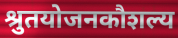
श्रुतयोजनकौशल्य